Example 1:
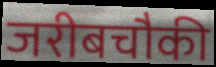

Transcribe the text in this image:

जरीबचौकी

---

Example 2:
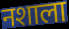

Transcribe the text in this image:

नशाला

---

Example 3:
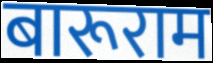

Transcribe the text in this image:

बारूराम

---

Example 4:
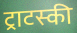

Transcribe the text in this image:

ट्राटस्की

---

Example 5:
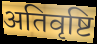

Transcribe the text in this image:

अतिवृष्टि